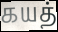
கயத்